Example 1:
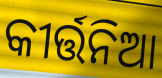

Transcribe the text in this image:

କୀର୍ତ୍ତନିଆ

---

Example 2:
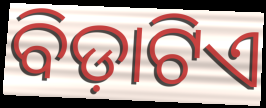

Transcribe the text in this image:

ବିଡ଼ାଟିଏ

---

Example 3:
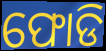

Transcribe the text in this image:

ଫୋଡି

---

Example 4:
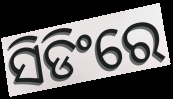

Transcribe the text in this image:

ସିଡିଂରେ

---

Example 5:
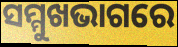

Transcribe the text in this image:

ସମ୍ମୁଖଭାଗରେ